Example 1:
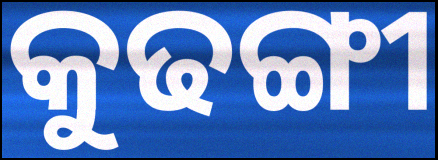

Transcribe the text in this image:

କୁଢଙ୍ଗୀ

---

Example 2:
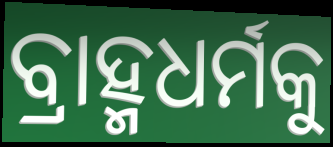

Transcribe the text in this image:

ବ୍ରାହ୍ମଧର୍ମକୁ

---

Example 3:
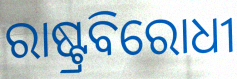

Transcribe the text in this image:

ରାଷ୍ଟ୍ରବିରୋଧୀ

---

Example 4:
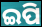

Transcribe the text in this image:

ଇପି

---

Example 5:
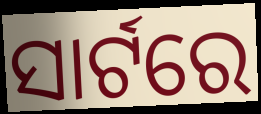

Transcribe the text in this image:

ସାର୍ଟରେ